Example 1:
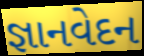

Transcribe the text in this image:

જ્ઞાનવેદન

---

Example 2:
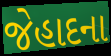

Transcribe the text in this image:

જેહાદના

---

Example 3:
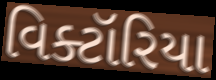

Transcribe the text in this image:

વિક્ટૉરિયા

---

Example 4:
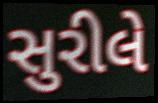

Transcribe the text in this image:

સુરીલે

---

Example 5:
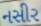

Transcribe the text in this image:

નસીર